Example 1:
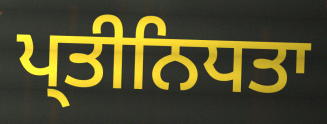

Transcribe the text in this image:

ਪ੍ਤੀਨਿਧਤਾ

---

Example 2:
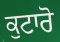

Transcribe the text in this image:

ਕੁਟਾਰੋ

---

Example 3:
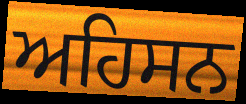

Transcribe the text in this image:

ਅਹਿਸਨ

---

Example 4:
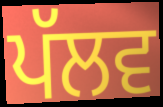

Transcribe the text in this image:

ਪੱਲਵ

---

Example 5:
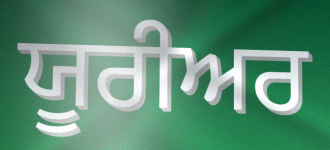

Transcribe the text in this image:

ਯੂਰੀਅਰ